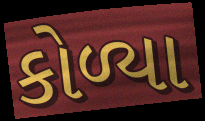
કોળ્યા